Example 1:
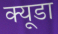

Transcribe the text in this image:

क्यूडा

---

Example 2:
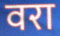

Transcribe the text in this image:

वरा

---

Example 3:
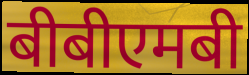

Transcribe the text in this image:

बीबीएमबी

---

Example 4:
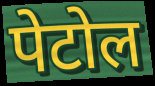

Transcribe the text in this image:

पेटोल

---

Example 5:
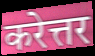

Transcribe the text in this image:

करेत्तर